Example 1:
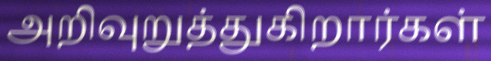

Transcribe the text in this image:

அறிவுறுத்துகிறார்கள்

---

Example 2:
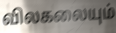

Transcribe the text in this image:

விலகலையும்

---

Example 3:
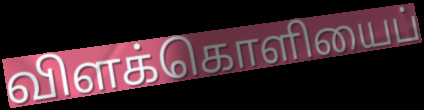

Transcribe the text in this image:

விளக்கொளியைப்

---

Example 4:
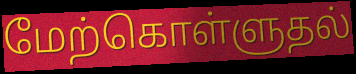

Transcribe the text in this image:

மேற்கொள்ளுதல்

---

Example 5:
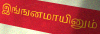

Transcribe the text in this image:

இங்ஙனமாயினும்